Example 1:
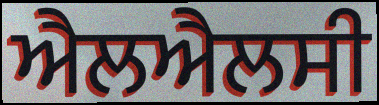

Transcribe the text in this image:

ਐਲਐਲਸੀ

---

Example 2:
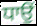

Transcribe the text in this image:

ਧਾਉਂ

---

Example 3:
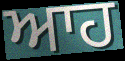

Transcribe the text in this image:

ਆਹ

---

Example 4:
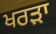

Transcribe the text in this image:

ਖਰੜਾ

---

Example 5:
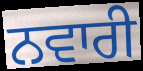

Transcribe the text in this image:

ਨਵਾਰੀ